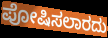
ಪೋಷಿಸಲಾರದು